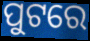
ପୁଟରେ